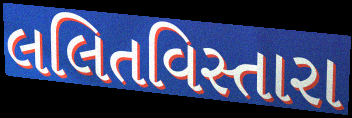
લલિતવિસ્તારા